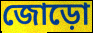
জোড়ো